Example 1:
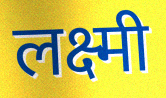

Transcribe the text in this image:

लक्ष्‍मी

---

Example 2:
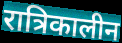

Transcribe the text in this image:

रात्रिकालीन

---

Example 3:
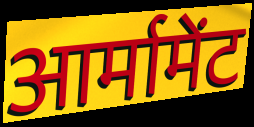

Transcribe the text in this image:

आर्मामेंट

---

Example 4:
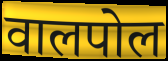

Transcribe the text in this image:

वालपोल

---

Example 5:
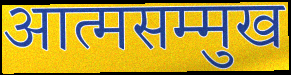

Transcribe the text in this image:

आत्मसम्मुख